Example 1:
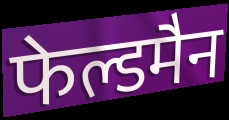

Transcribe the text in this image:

फेल्डमैन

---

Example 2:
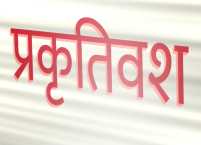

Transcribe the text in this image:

प्रकृतिवश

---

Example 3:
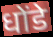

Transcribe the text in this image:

धोंडे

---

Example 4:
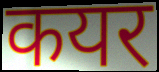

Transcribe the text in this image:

कयर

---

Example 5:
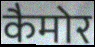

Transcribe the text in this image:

कैमोर